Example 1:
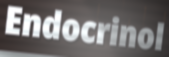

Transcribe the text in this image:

Endocrinol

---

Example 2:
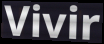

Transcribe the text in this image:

Vivir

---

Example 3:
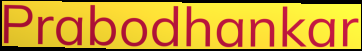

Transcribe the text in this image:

Prabodhankar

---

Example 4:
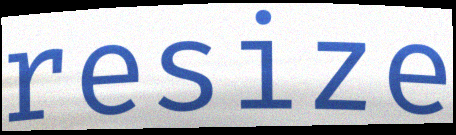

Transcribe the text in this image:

resize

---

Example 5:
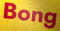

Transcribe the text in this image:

Bong